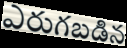
ఎరుగబడిన